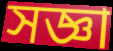
সজ্ঞা